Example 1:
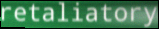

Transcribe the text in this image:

retaliatory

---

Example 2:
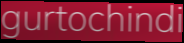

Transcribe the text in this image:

gurtochindi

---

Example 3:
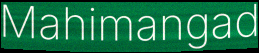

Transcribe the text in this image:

Mahimangad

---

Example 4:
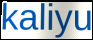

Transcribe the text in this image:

kaliyu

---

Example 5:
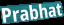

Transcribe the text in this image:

Prabhat